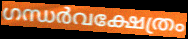
ഗന്ധർവക്ഷേത്രം